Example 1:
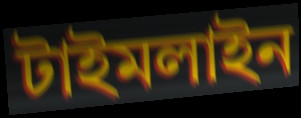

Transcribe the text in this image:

টাইমলাইন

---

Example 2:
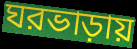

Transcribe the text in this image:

ঘরভাড়ায়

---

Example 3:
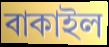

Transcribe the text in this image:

বাকাইল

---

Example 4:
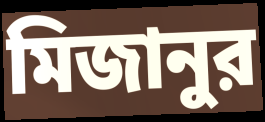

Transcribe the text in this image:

মিজানুর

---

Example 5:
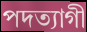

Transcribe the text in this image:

পদত্যাগী